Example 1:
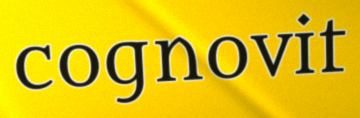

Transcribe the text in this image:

cognovit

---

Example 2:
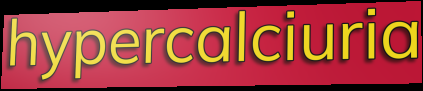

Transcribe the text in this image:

hypercalciuria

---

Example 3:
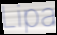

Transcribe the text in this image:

Lipa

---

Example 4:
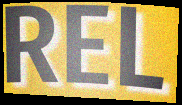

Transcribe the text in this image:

REL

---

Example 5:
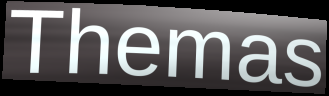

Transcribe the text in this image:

Themas